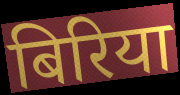
बिरिया